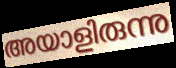
അയാളിരുന്നു